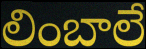
లింబాలే